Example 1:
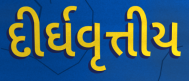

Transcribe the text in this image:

દીર્ઘવૃત્તીય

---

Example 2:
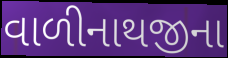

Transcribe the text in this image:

વાળીનાથજીના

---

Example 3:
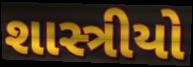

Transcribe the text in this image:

શાસ્ત્રીયો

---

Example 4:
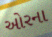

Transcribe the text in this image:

ઓરના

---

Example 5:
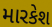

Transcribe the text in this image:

મારકેશ